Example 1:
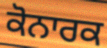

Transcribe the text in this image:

ਕੋਨਾਰਕ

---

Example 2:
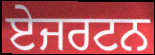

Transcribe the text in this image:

ਏਜਰਟਨ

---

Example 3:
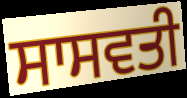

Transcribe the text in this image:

ਸਾਸਵਤੀ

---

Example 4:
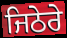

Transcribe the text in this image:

ਜਿਠੇਰੇ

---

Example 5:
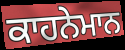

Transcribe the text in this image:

ਕਾਹਨੇਮਾਨ